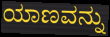
ಯಾಣವನ್ನು